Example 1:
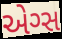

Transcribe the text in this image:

એગ્સ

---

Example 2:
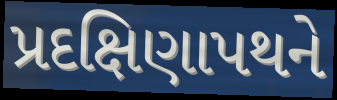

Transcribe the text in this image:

પ્રદક્ષિણાપથને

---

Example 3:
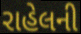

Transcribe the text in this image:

રાહેલની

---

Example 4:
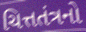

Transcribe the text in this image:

ચિત્તતંત્રનો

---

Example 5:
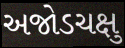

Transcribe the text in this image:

અજોડચક્ષુ